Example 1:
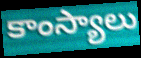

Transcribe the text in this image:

కాంస్యాలు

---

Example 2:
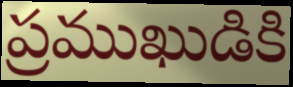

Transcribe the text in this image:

ప్రముఖుడికి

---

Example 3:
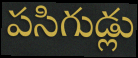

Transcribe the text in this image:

పసిగుడ్లు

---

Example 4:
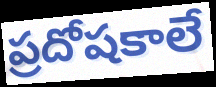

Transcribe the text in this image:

ప్రదోషకాలే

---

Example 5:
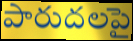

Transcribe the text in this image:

పారుదలపై